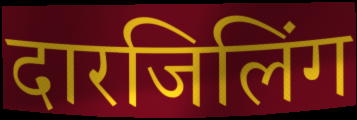
दारजिलिंग